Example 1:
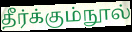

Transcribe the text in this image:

தீர்க்கும்நூல்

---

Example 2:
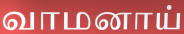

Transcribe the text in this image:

வாமனாய்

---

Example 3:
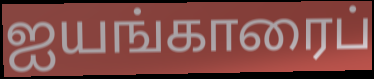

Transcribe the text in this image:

ஐயங்காரைப்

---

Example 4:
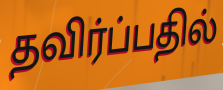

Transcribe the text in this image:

தவிர்ப்பதில்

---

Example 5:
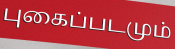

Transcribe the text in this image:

புகைப்படமும்